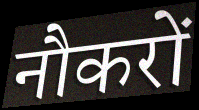
नौकरों